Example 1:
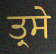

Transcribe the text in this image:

ਤ੍ਰਸੇ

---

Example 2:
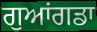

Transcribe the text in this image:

ਗੁਆਂਗਡਾ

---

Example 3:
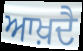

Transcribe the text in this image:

ਆਖ਼ਦੈ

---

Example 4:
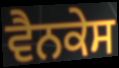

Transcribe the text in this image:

ਵੈਨਕੇਸ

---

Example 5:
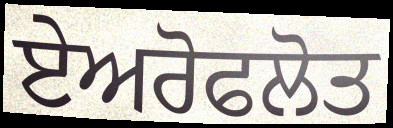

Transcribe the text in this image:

ਏਅਰੋਫਲੋਤ